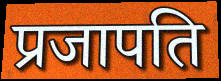
प्रजापति